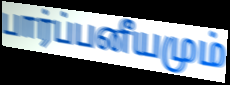
பார்ப்பனீயமும்